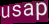
usap